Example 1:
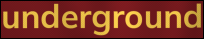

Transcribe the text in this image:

underground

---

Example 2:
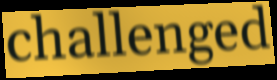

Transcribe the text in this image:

challenged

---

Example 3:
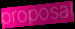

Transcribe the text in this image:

proposal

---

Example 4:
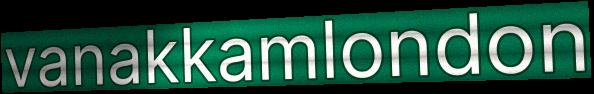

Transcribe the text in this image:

vanakkamlondon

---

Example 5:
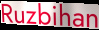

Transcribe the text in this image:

Ruzbihan